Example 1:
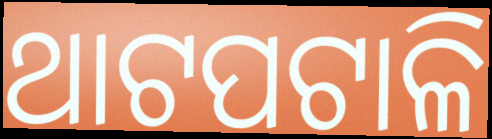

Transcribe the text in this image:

ଥାଟପଟାଳି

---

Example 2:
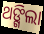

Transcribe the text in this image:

ଥଙ୍ଗିଲା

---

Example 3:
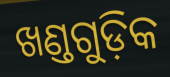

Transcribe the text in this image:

ଖଣ୍ଡଗୁଡ଼ିକ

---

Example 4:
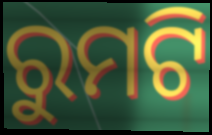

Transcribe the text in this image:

ରୁମଟି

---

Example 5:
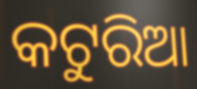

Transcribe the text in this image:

କଟୁରିଆ